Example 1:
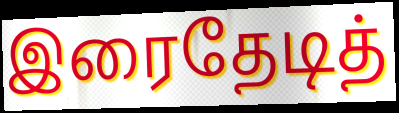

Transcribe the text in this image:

இரைதேடித்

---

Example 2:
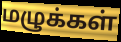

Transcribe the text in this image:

மழுக்கள்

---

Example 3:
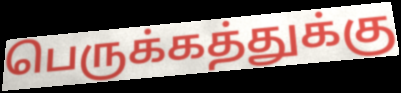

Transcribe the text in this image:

பெருக்கத்துக்கு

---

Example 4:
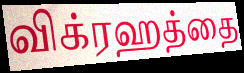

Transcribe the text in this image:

விக்ரஹத்தை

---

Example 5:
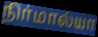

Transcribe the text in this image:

நிர்மால்யா